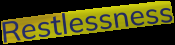
Restlessness